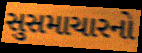
સુસમાચારનો